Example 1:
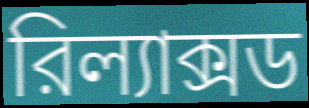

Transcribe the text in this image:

রিল্যাক্সড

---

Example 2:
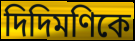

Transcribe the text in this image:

দিদিমণিকে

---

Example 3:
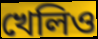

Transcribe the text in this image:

খেলিও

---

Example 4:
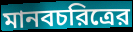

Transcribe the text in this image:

মানবচরিত্রের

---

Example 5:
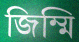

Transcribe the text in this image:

জিম্মি